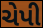
ચેપી